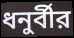
ধনুর্বীর